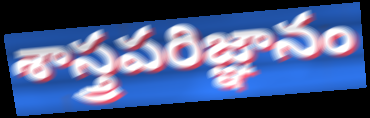
శాస్త్రపరిజ్ఞానం